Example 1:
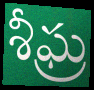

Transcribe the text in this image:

శీఘ్ర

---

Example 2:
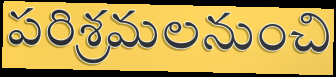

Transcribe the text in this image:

పరిశ్రమలనుంచి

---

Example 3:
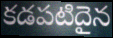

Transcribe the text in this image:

కడపటిదైన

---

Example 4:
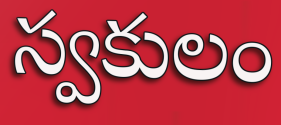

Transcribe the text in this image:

స్వకులం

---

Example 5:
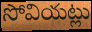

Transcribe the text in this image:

సోవియట్లు